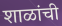
शाळांची